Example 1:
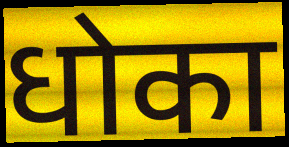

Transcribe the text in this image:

धोका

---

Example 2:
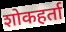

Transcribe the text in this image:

शोकहर्ता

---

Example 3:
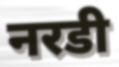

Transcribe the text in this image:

नरडी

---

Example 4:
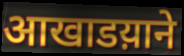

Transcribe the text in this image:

आखाडय़ाने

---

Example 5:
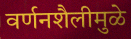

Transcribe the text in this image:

वर्णनशैलीमुळे